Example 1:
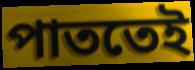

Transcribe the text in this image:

পাততেই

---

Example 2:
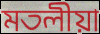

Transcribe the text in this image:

মতলীয়া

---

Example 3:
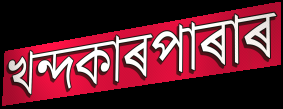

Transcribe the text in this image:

খন্দকাৰপাৰাৰ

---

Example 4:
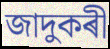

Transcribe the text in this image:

জাদুকৰী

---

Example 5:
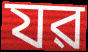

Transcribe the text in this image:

যৱ